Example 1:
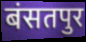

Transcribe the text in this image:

बंसतपुर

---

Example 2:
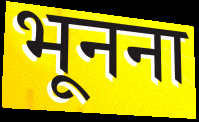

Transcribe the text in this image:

भूनना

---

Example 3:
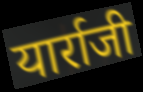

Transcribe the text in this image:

यार्राजी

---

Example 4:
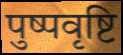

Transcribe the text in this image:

पुष्पवृष्टि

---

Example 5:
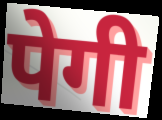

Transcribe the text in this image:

पेगी